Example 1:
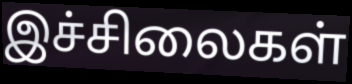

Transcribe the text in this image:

இச்சிலைகள்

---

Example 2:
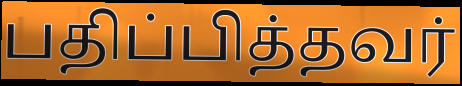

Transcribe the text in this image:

பதிப்பித்தவர்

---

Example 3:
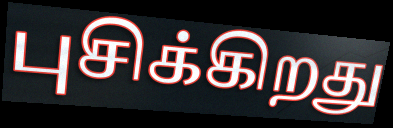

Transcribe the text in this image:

புசிக்கிறது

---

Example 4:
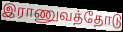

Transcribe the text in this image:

இராணுவத்தோடு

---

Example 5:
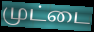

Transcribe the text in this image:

முட்டை